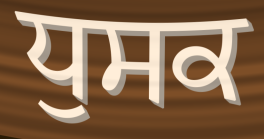
ਧੁਸਕ